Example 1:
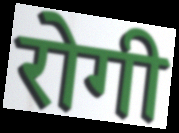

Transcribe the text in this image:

रोगी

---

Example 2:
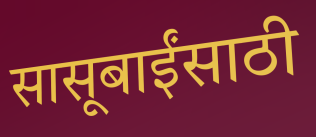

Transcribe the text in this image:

सासूबाईंसाठी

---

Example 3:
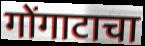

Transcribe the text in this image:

गोंगाटाचा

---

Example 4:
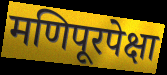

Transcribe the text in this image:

मणिपूरपेक्षा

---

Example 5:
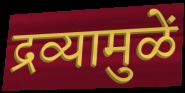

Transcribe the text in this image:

द्रव्यामुळें